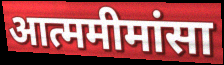
आत्ममीमांसा